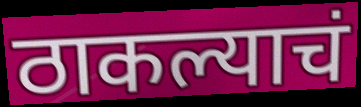
ठाकल्याचं